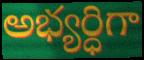
అభ్యర్ధిగా